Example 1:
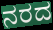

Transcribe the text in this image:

ನರದ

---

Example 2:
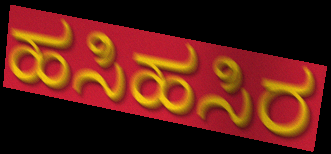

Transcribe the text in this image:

ಹಸಿಹಸಿರ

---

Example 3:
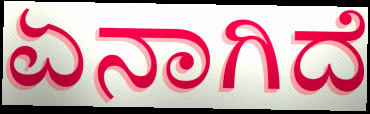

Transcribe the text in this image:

ಏನಾಗಿದೆ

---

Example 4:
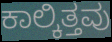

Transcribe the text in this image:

ಕಾಲ್ಕಿತ್ತವು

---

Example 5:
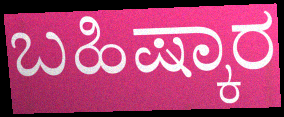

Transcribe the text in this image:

ಬಹಿಷ್ಕಾರ